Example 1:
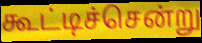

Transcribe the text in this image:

கூட்டிச்சென்று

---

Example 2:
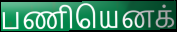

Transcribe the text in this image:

பணியெனக்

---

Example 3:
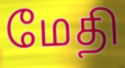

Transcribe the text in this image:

மேதி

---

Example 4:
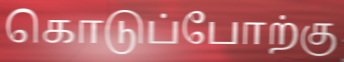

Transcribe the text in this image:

கொடுப்போற்கு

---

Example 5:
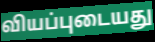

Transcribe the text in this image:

வியப்புடையது